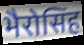
भैरोसिंह